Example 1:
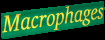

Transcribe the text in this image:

Macrophages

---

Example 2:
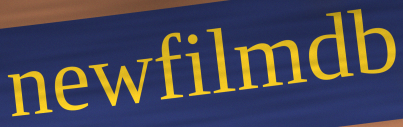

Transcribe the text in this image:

newfilmdb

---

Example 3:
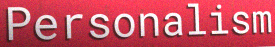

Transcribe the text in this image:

Personalism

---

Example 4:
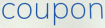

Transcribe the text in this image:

coupon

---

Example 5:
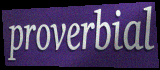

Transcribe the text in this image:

proverbial